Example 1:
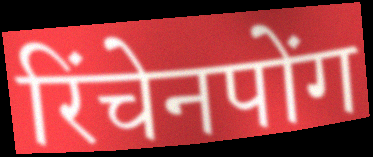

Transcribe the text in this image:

रिंचेनपोंग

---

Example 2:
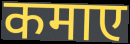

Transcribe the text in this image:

कमाए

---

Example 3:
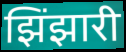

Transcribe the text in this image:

झिंझारी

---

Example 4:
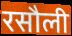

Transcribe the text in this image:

रसौली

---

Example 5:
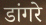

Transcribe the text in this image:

डांगरे